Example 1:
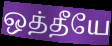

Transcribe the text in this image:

ஒத்தீயே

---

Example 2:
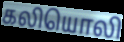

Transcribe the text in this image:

கலியொலி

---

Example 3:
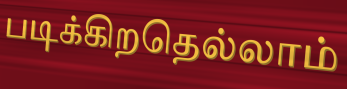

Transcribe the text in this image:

படிக்கிறதெல்லாம்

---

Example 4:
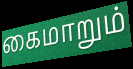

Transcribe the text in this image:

கைமாறும்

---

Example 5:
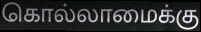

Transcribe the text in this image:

கொல்லாமைக்கு